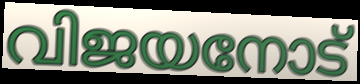
വിജയനോട്